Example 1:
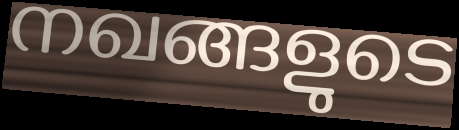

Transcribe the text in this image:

നഖങ്ങളുടെ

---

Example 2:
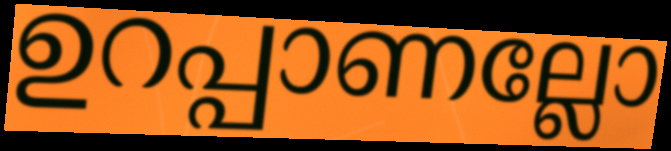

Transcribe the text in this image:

ഉറപ്പാണല്ലോ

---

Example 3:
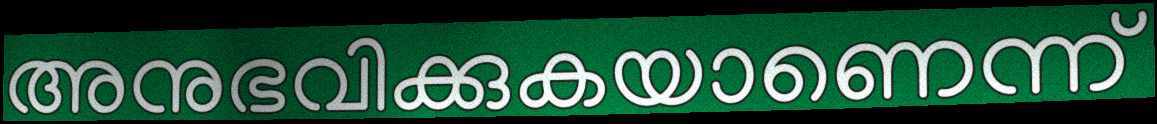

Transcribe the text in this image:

അനുഭവിക്കുകയാണെന്ന്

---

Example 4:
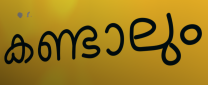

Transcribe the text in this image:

കണ്ടാലും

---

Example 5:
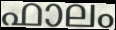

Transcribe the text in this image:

ഫാലം